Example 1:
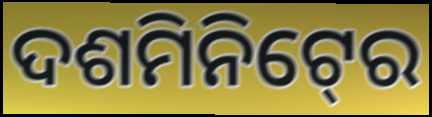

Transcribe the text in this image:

ଦଶମିନିଟ୍‍ରେ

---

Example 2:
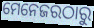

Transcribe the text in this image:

ମେନେଜରଠାରୁ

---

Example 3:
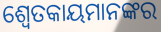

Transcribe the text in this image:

ଶ୍ବେତକାୟମାନଙ୍କର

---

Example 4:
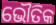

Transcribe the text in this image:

ଭୌତିକ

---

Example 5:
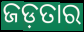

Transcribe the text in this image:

ଜଡ଼ତାର